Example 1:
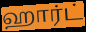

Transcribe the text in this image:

ஹார்ட்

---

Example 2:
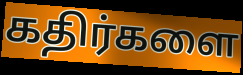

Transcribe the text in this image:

கதிர்களை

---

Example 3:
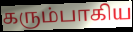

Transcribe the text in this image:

கரும்பாகிய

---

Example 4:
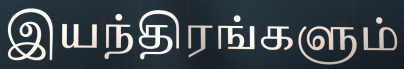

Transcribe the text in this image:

இயந்திரங்களும்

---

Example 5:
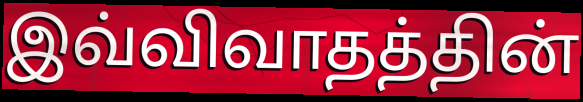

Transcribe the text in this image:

இவ்விவாதத்தின்